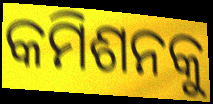
କମିଶନକୁ